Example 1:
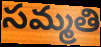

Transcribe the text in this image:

సమ్మతి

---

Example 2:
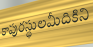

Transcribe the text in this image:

కాపురస్థులమీదికిని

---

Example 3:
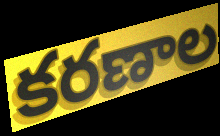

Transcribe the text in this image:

కరణాల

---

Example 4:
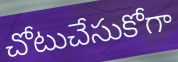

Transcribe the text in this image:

చోటుచేసుకోగా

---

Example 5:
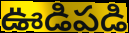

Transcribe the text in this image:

ఊడిపడి